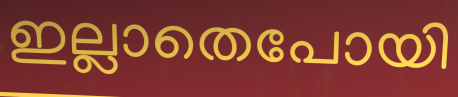
ഇല്ലാതെപോയി